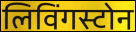
लिविंगस्टोन